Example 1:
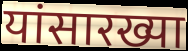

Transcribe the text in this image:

यांसारख्‍या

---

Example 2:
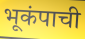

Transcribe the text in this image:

भूकंपाची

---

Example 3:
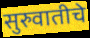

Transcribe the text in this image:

सुरुवातीचे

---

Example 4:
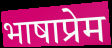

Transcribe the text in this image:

भाषाप्रेम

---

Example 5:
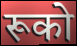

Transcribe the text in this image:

रूको